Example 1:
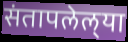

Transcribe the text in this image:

संतापलेल्या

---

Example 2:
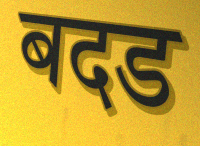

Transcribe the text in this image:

बदड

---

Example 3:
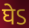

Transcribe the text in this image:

घेऽ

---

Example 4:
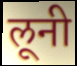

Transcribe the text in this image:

लूनी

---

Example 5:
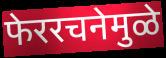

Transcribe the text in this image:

फेररचनेमुळे